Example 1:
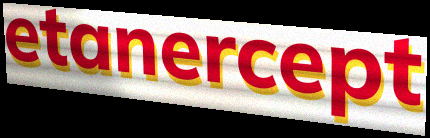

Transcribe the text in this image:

etanercept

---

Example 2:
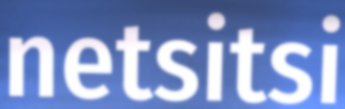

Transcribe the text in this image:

netsitsi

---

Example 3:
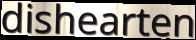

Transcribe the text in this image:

dishearten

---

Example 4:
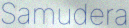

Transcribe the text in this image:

Samudera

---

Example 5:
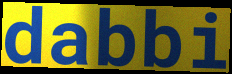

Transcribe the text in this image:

dabbi